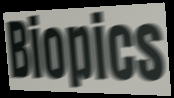
Biopics